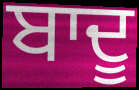
ਬਾਦੂ